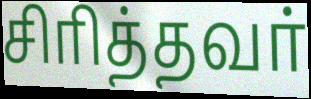
சிரித்தவர்